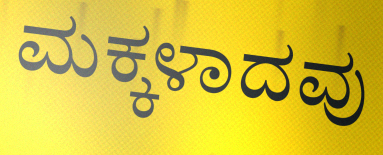
ಮಕ್ಕಳಾದವು